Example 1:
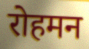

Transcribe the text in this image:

रोहमन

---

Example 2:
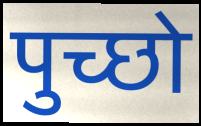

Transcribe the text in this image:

पुच्छो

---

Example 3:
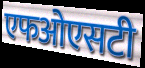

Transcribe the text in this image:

एफओएसटी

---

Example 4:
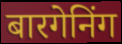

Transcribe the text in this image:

बारगेनिंग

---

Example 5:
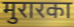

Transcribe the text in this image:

मुरारका